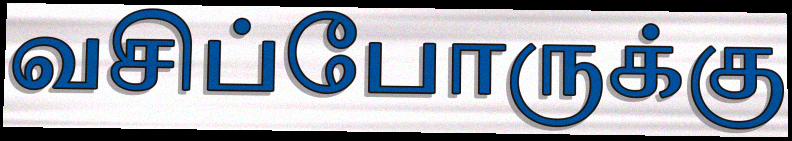
வசிப்போருக்கு